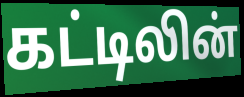
கட்டிலின்